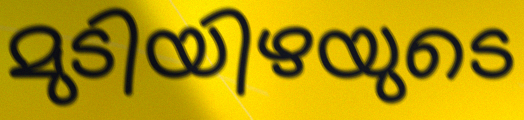
മുടിയിഴയുടെ